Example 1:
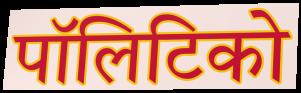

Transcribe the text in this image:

पॉलिटिको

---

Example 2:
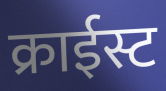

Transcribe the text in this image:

क्राईस्ट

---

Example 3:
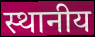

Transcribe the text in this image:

स्‍थानीय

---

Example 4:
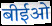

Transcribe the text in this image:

बीईओ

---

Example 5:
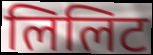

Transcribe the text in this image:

लिलिट